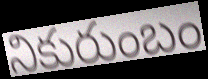
నికురుంబం